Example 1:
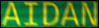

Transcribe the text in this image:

AIDAN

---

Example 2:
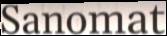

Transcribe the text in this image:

Sanomat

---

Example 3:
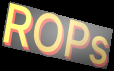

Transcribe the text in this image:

ROPs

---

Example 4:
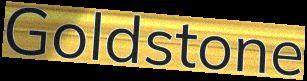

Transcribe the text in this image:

Goldstone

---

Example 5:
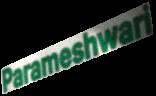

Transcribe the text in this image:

Parameshwari